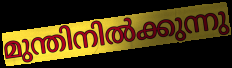
മുന്തിനിൽക്കുന്നു